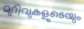
മുറിവുകളുടെയും